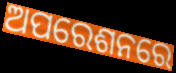
ଅପରେଶନରେ